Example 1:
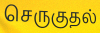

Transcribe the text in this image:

செருகுதல்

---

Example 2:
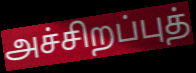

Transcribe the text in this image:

அச்சிறப்புத்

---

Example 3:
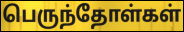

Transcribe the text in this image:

பெருந்தோள்கள்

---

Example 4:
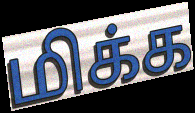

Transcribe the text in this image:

மிக்க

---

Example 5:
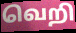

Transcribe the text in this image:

வெறி